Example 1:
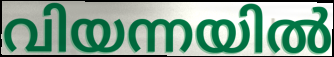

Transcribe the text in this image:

വിയന്നയിൽ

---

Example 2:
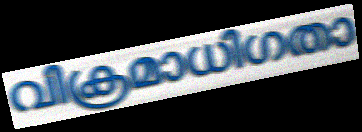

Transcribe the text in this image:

വിക്രമാധിഗതാ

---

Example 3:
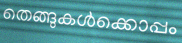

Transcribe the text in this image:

തെങ്ങുകൾക്കൊപ്പം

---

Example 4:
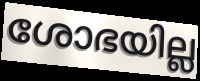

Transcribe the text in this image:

ശോഭയില്ല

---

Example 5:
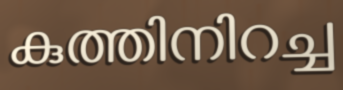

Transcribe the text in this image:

കുത്തിനിറച്ച